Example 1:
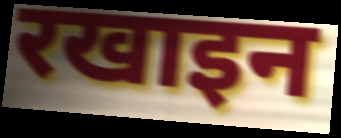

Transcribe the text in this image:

रखाइन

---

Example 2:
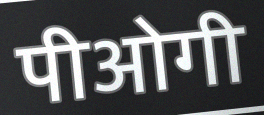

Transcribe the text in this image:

पीओगी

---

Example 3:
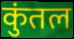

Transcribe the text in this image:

कुंतल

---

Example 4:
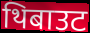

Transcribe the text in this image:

थिबाउट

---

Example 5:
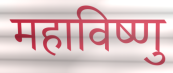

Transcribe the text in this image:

महाविष्णु